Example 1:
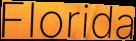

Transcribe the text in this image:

Florida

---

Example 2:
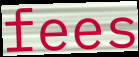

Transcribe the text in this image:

fees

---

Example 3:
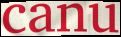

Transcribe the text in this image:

canu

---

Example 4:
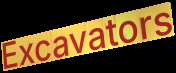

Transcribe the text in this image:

Excavators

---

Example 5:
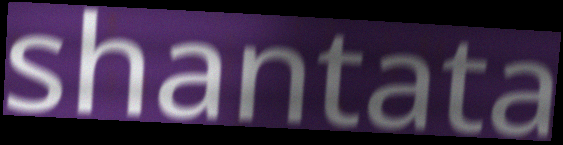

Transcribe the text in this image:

shantata